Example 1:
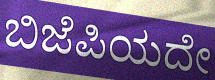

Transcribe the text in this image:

ಬಿಜೆಪಿಯದೇ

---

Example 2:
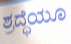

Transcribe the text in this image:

ಶ್ರದ್ಧೆಯೂ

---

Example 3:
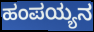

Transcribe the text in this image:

ಹಂಪಯ್ಯನ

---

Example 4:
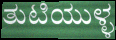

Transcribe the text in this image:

ತುಟಿಯುಳ್ಳ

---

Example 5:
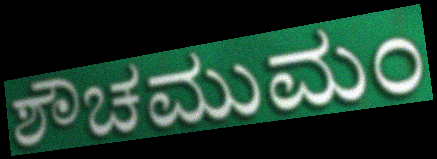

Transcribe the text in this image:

ಶೌಚಮುಮಂ